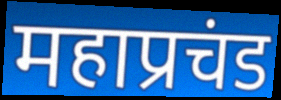
महाप्रचंड